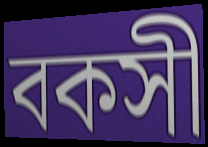
বকসী